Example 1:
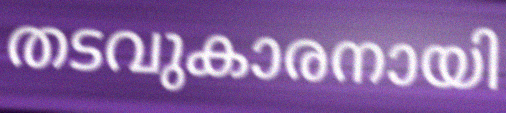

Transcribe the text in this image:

തടവുകാരനായി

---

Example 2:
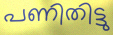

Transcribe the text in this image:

പണിതിട്ടു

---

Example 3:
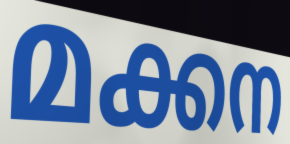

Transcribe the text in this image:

മക്കന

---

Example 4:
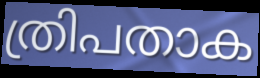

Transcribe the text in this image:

ത്രിപതാക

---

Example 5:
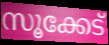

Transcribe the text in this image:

സൂക്കേട്